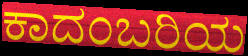
ಕಾದಂಬರಿಯ